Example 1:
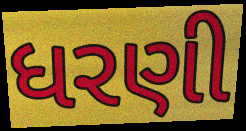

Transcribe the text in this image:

ધરણી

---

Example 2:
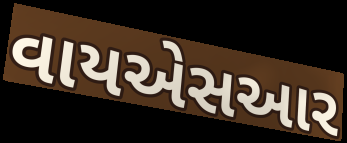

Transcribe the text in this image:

વાયએસઆર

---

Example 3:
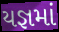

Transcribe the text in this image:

યજ્ઞમાં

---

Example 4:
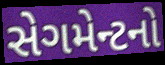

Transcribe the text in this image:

સેગમેન્ટનો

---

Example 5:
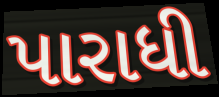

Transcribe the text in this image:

પારાધી